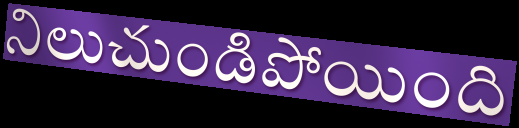
నిలుచుండిపోయింది